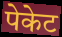
पेकेट